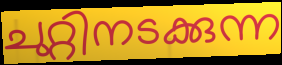
ചുറ്റിനടക്കുന്ന